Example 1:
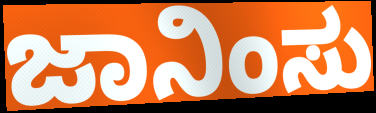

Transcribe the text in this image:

ಜಾನಿಂಸು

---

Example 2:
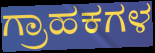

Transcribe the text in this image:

ಗ್ರಾಹಕಗಳ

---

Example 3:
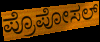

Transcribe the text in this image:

ಪ್ರೊಪೋಸಲ್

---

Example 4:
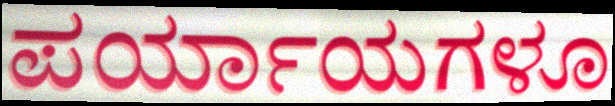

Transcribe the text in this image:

ಪರ್ಯಾಯಗಳೂ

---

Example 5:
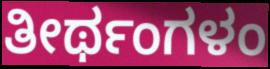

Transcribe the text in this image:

ತೀರ್ಥಂಗಳಂ